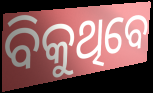
ବିକୁଥିବେ